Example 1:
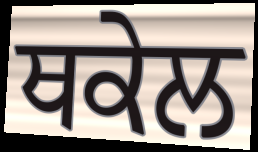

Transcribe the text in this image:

ਥਕੇਲ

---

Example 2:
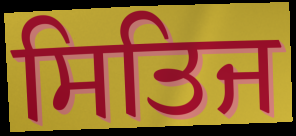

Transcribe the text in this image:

ਸਿਤਿਜ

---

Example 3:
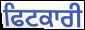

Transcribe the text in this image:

ਫਿਟਕਾਰੀ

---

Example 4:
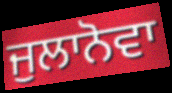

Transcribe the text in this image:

ਜੁਲਾਨੋਵਾ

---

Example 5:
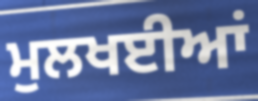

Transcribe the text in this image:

ਮੁਲਖਈਆਂ